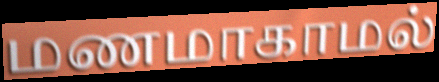
மணமாகாமல்